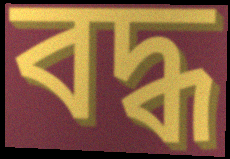
বদ্ধ